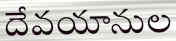
దేవయానుల